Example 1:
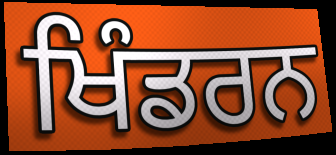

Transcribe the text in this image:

ਖਿੰਡਰਨ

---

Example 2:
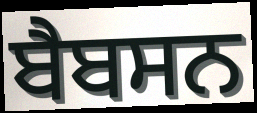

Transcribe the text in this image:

ਬੈਬਸਨ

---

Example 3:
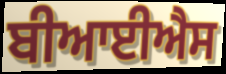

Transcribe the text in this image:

ਬੀਆਈਐਸ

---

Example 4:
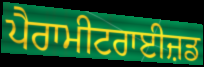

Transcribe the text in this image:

ਪੈਰਾਮੀਟਰਾਈਜ਼ਡ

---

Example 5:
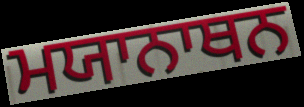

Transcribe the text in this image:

ਮਯਾਨਾਥਨ